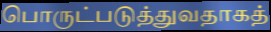
பொருட்படுத்துவதாகத்